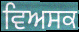
ਵਿਅਸਕ